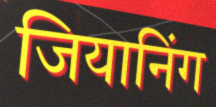
जियानिंग